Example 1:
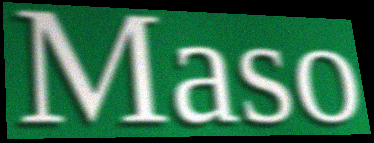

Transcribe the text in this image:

Maso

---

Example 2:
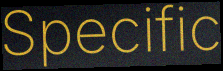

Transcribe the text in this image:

Specific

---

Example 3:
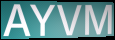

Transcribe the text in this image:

AYVM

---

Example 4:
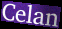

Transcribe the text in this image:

Celan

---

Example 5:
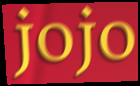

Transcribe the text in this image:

jojo